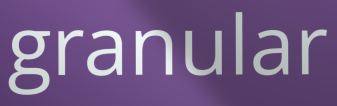
granular